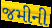
જમીની